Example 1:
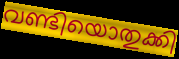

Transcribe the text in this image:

വണ്ടിയൊതുക്കി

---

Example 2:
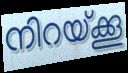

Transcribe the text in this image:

നിറയ്ക്കൂ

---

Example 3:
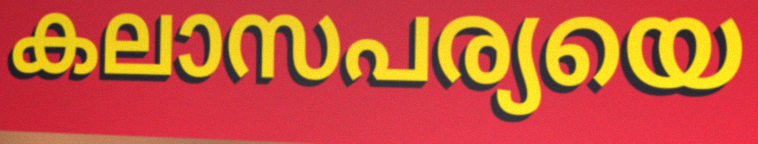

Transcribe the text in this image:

കലാസപര്യയെ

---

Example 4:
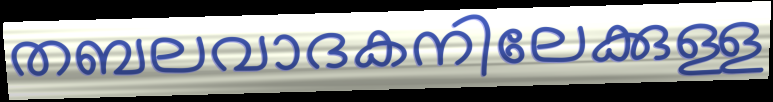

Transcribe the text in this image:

തബലവാദകനിലേക്കുള്ള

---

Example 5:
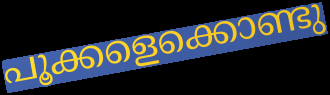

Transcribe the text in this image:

പൂക്കളെക്കൊണ്ടു